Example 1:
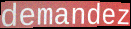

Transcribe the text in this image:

demandez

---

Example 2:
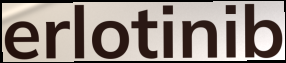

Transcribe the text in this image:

erlotinib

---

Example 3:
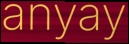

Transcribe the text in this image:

anyay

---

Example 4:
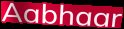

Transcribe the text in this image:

Aabhaar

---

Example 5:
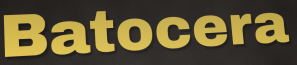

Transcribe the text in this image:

Batocera